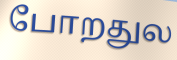
போறதுல